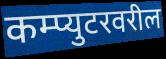
कम्प्युटरवरील